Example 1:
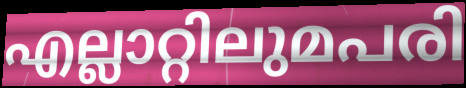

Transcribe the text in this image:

എല്ലാറ്റിലുമപരി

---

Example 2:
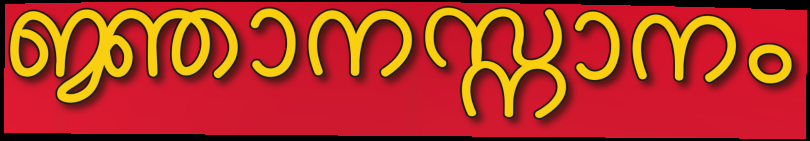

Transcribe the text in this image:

ജ്ഞാനസ്നാനം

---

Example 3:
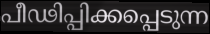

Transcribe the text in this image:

പീഢിപ്പിക്കപ്പെടുന്ന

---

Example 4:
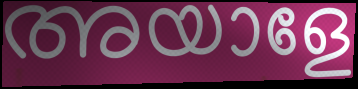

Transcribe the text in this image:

അയാളേ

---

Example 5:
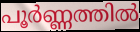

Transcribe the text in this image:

പൂർണ്ണത്തിൽ